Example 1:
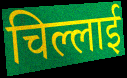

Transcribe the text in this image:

चिल्लाई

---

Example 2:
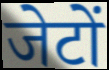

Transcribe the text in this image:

जेटों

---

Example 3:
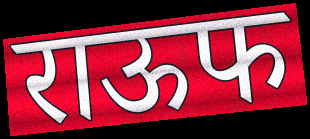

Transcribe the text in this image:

राऊफ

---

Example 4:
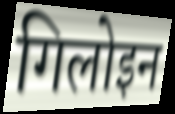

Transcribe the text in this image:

गिलोइन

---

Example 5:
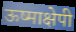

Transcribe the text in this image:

ऊष्माक्षेपी